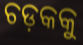
ଚଡ଼କକୁ